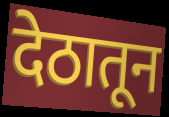
देठातून